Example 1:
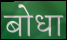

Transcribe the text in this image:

बोधा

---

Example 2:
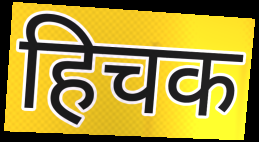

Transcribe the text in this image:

हिचक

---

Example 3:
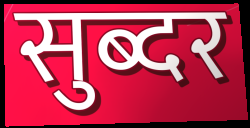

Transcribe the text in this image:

सुब्दर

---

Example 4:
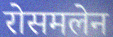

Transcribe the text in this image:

रोसमलेन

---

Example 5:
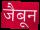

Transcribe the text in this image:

जैबून